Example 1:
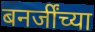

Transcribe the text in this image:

बनर्जींच्या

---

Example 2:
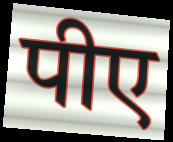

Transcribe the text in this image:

पीए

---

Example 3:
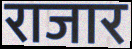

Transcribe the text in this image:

राजार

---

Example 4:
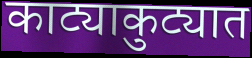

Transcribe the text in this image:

काट्याकुट्यात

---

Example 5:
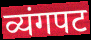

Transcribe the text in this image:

व्यंगपट